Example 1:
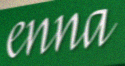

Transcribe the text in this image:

enna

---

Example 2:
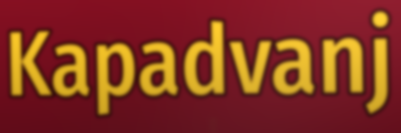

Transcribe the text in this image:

Kapadvanj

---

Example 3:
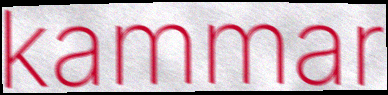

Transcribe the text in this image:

kammar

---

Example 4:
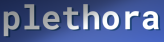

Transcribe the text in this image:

plethora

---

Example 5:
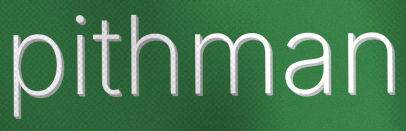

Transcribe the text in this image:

pithman